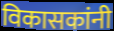
विकासकांनी